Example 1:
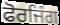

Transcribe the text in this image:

ਫੋਰਜਿੰਗ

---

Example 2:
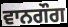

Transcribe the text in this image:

ਵਾਨਗੌਗ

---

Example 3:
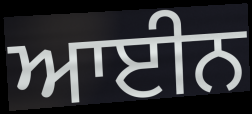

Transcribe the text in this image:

ਆਈਨ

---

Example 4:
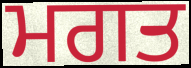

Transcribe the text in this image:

ਮਗਤ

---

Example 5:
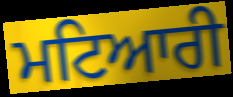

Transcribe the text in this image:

ਮਟਿਆਰੀ